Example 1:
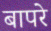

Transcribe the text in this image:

बापरे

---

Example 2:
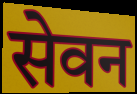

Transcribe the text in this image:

सेवन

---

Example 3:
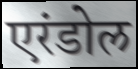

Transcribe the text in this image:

एरंडोल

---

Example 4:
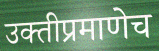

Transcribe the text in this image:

उक्तीप्रमाणेच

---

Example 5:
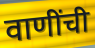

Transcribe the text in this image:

वाणींची